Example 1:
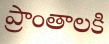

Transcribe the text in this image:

ప్రాంతాలకి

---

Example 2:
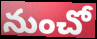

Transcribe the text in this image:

నుంచో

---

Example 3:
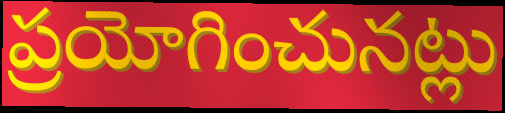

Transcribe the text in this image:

ప్రయోగించునట్లు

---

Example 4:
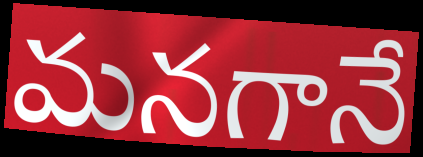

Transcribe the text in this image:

మనగానే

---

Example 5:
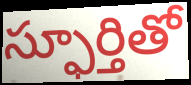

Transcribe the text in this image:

స్ఫూర్తితో